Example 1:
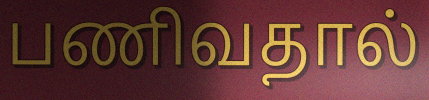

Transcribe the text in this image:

பணிவதால்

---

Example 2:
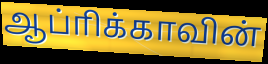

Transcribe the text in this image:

ஆப்ரிக்காவின்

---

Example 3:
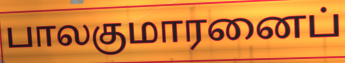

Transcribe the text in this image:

பாலகுமாரனைப்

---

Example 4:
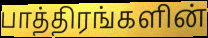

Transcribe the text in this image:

பாத்திரங்களின்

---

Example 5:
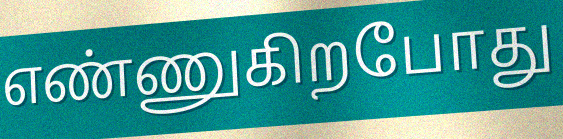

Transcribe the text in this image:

எண்ணுகிறபோது